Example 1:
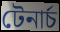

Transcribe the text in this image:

টেনাৰ্চ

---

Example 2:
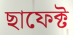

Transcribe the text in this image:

ছাফেক্ট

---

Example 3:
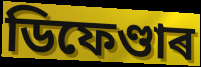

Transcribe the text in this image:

ডিফেণ্ডাৰ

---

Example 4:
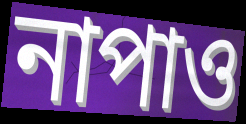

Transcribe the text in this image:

নাপাও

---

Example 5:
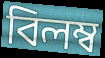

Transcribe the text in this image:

বিলম্ব